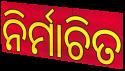
ନିର୍ମାଚିତ